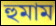
হুমাম